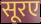
सूरए